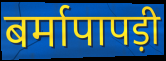
बर्मापापड़ी